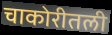
चाकोरीतली